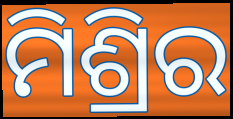
ମିଶ୍ରିର